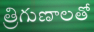
త్రిగుణాలతో